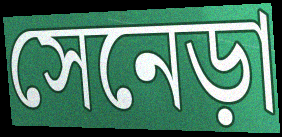
সেনেড়া